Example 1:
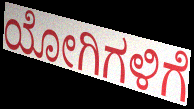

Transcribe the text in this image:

ಯೋಗಿಗಳಿಗೆ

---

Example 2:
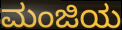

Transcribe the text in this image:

ಮಂಜಿಯ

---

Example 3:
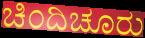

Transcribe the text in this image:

ಚಿಂದಿಚೂರು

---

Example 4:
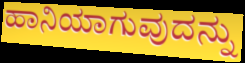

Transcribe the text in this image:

ಹಾನಿಯಾಗುವುದನ್ನು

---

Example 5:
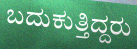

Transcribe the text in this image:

ಬದುಕುತ್ತಿದ್ದರು